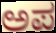
ಅಪ